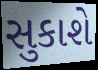
સુકાશે